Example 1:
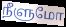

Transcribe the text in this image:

நீளுமோ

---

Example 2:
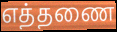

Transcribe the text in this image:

எத்தணை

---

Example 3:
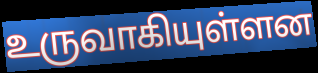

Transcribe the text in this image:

உருவாகியுள்ளன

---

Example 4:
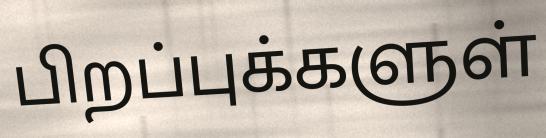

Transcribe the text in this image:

பிறப்புக்களுள்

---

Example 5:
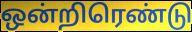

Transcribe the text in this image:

ஒன்றிரெண்டு